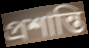
প্রশান্তি